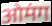
ओमंग